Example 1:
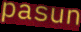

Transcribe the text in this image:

pasun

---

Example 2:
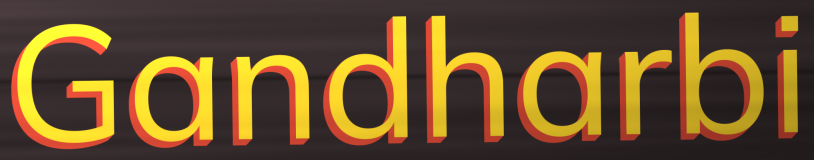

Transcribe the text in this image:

Gandharbi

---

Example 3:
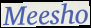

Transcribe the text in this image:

Meesho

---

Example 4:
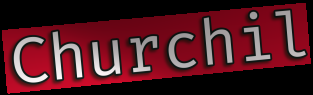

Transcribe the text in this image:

Churchil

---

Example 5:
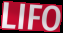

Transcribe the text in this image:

LIFO